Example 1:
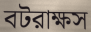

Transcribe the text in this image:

বটরাক্ষস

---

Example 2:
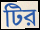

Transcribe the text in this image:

টির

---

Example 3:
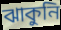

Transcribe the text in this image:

ঝাকুনি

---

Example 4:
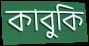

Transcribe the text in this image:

কাবুকি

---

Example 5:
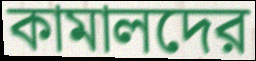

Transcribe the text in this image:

কামালদের